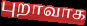
புறாவாக